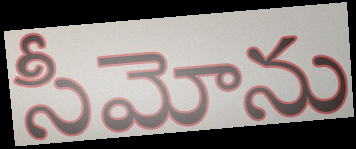
సీమోను